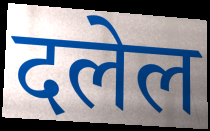
दलेल